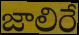
జాలిరే